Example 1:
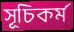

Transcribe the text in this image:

সূচিকর্ম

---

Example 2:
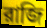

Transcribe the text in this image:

রাজি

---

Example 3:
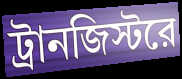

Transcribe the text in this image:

ট্রানজিস্টরে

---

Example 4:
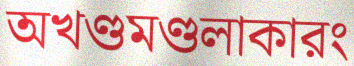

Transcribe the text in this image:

অখণ্ডমণ্ডলাকারং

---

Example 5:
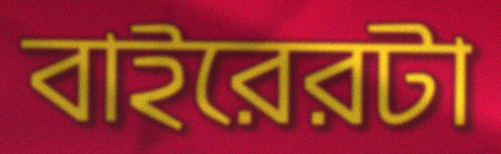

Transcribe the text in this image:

বাইরেরটা